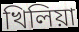
খিলিয়া